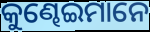
କୁଣ୍ଢେଇମାନେ